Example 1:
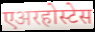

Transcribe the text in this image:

एअरहोस्टेस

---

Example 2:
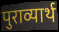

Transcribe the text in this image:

पुराव्यार्थ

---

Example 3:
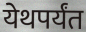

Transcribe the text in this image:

येथपर्यंत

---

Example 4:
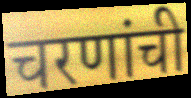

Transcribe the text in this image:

चरणांची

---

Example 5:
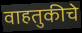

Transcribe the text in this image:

वाहतुकीचे